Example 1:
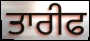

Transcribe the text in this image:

ਤਾਰੀਫ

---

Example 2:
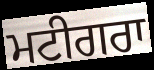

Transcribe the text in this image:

ਮਟੀਗਰਾ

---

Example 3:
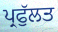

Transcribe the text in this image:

ਪ੍ਰਫੁੱਲਤ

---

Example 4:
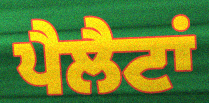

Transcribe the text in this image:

ਪੈਲੈਟਾਂ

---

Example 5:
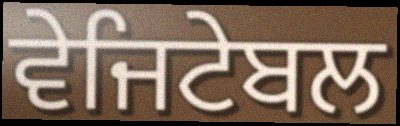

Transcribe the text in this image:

ਵੇਜਿਟੇਬਲ